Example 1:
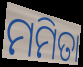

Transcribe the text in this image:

ମମିତା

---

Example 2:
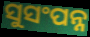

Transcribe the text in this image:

ସୁସଂପନ୍ନ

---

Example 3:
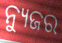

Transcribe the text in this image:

ନ୍ୟୁଜର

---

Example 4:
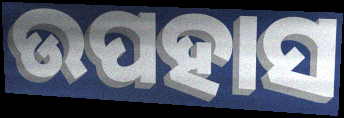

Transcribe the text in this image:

ଉପହାସ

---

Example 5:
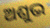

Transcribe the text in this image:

ଅଶୁଭ